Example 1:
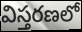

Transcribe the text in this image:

విస్తరణలో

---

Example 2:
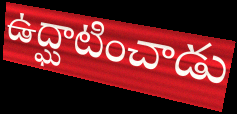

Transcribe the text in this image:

ఉద్ఘాటించాడు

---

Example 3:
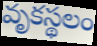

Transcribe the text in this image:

వృకస్థలం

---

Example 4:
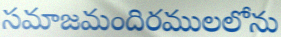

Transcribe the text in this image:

సమాజమందిరములలోను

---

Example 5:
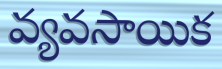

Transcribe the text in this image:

వ్యవసాయిక